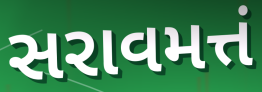
સરાવમત્તં